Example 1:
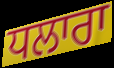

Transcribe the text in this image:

ਧਲਾਰਾ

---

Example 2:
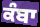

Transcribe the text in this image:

ਕੰਬਾ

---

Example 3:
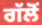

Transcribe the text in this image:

ਗੱਲੋਂ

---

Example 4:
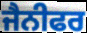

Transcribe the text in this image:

ਜੈਨੀਫਰ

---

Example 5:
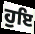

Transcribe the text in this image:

ਹੁਇ